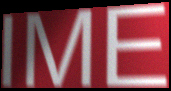
IME